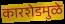
कारशेडमुळे